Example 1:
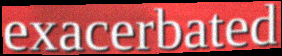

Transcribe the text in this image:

exacerbated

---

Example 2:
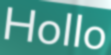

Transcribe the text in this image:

Hollo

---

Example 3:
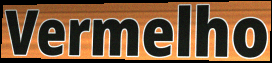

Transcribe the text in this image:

Vermelho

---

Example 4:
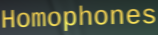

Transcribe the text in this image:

Homophones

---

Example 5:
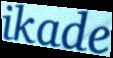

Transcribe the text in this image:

ikade